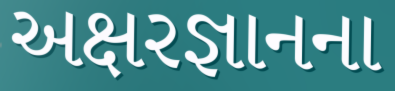
અક્ષરજ્ઞાનના